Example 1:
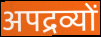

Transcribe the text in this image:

अपद्रव्यों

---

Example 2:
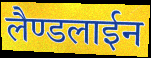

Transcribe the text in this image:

लैण्डलाईन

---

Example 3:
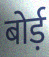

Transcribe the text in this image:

बोर्ड़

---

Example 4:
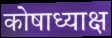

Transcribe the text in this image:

कोषाध्याक्ष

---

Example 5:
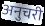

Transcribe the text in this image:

अनुचरी